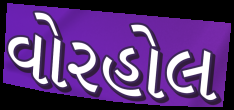
વોરહોલ